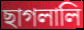
ছাগলালি